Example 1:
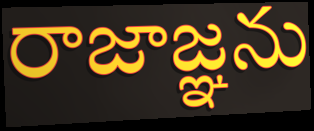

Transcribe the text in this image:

రాజాజ్ఞను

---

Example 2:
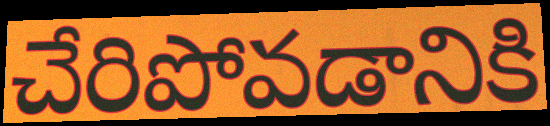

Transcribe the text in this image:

చేరిపోవడానికి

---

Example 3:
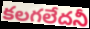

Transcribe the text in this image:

కలగలేదనీ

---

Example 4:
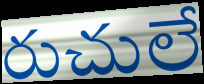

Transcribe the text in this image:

రుచులే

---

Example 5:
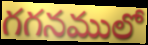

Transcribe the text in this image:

గగనములో